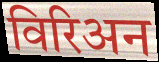
विरिअन